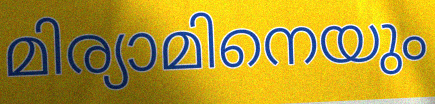
മിര്യാമിനെയും